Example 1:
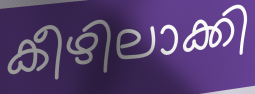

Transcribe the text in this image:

കീഴിലാക്കി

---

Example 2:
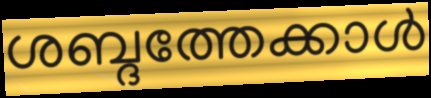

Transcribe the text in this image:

ശബ്ദത്തേക്കാൾ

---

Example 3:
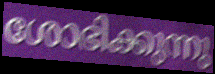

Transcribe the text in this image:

ശോഭിക്കുന്നു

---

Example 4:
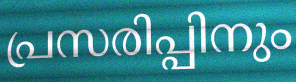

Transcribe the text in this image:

പ്രസരിപ്പിനും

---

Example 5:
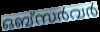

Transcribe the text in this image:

ഒബ്സർവർ